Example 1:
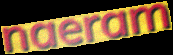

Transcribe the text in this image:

naeram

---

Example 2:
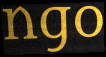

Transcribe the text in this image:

ngo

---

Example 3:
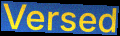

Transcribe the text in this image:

Versed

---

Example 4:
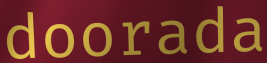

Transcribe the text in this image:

doorada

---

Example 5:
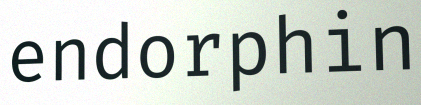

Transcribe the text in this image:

endorphin